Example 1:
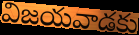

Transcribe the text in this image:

విజయవాడకు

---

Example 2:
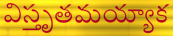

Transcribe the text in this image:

విస్తృతమయ్యాక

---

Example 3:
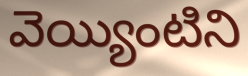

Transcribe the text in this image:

వెయ్యింటిని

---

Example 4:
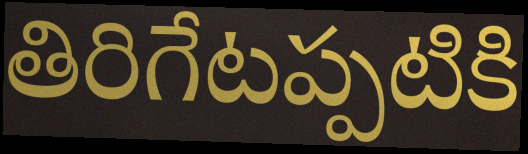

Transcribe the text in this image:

తిరిగేటప్పటికి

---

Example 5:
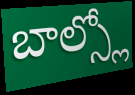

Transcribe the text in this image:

బాల్స్లో